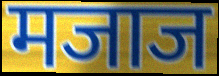
मजाज